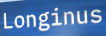
Longinus